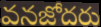
వనజోదరు